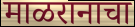
माळरानाचा